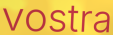
vostra